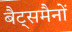
बैट्समैनों